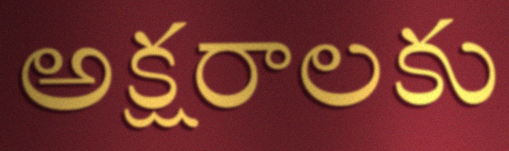
అక్షరాలకు